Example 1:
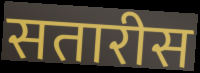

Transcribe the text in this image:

सतारीस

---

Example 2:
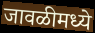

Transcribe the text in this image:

जावळीमध्ये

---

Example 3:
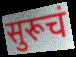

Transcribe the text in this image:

सुरूचं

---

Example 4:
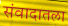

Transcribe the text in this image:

संवादातला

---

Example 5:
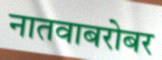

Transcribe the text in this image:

नातवाबरोबर